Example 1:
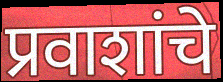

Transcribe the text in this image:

प्रवाशांचे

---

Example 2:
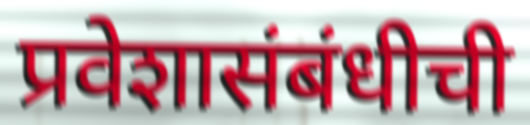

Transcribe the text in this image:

प्रवेशासंबंधीची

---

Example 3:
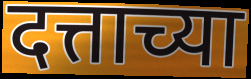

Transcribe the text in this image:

दत्ताच्या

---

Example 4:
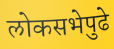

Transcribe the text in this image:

लोकसभेपुढे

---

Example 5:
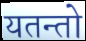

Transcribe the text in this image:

यतन्तो